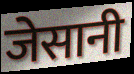
जेसानी